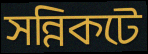
সন্নিকটে